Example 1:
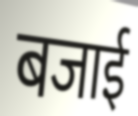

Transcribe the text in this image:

बजाई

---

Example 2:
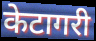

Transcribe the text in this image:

केटागरी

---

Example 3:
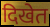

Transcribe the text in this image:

दिखेत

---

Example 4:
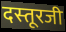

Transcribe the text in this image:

दस्तूरजी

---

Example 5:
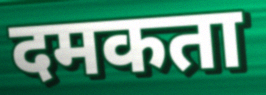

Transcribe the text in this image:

दमकता